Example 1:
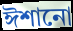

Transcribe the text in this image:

ঈশানো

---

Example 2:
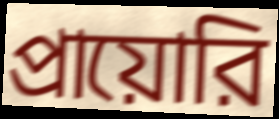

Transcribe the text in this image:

প্রায়োরি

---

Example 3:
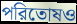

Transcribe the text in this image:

পরিতোষও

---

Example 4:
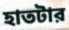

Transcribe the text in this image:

হাতটার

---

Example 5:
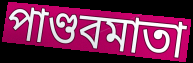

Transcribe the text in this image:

পাণ্ডবমাতা